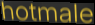
hotmale